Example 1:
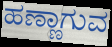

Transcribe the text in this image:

ಹಣ್ಣಾಗುವ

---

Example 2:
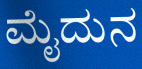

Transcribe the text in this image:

ಮೈದುನ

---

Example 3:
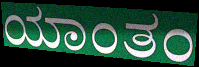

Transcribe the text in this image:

ಯಾಂತಂ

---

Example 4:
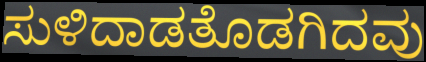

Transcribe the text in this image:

ಸುಳಿದಾಡತೊಡಗಿದವು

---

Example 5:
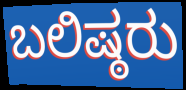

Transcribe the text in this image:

ಬಲಿಷ್ಠರು